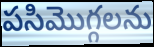
పసిమొగ్గలను